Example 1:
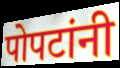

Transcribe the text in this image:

पोपटांनी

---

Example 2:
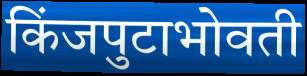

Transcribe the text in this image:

किंजपुटाभोवती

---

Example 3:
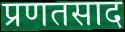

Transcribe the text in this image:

प्रणतसाद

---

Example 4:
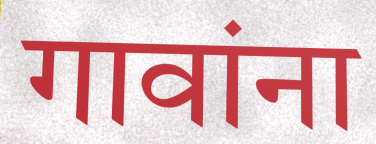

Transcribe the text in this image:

गावांना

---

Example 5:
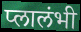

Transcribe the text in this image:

प्लालंभी